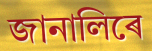
জানালিৰে